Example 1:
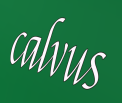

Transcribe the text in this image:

calvus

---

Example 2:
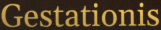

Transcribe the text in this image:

Gestationis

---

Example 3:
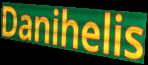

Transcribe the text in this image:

Danihelis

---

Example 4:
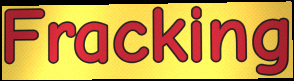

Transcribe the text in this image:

Fracking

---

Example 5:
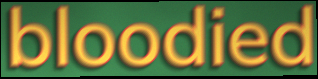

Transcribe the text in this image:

bloodied